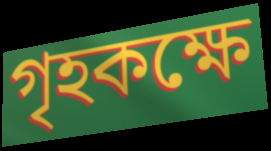
গৃহকক্ষে